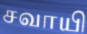
சவாயி